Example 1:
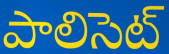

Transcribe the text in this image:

పాలిసెట్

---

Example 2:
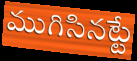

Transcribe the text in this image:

ముగిసినట్టే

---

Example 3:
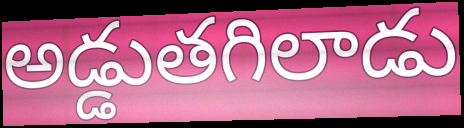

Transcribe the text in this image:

అడ్డుతగిలాడు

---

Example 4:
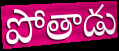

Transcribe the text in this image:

పోతాడు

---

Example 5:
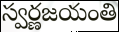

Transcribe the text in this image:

స్వర్ణజయంతి